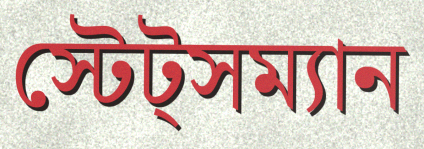
স্টেট্সম্যান